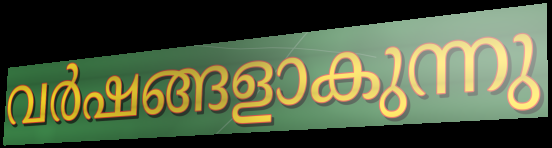
വർഷങ്ങളാകുന്നു